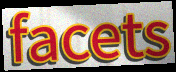
facets